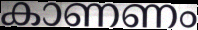
കാണണം